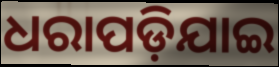
ଧରାପଡ଼ିଯାଇ